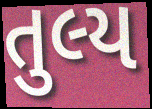
તુલ્ય